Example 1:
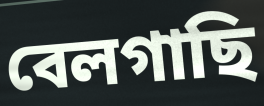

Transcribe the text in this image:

বেলগাছি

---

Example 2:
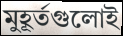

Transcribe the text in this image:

মুহূর্তগুলোই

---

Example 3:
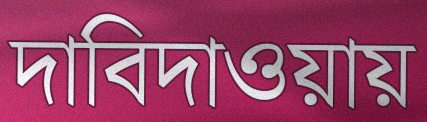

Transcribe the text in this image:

দাবিদাওয়ায়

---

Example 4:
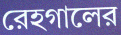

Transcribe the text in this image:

রেহগালের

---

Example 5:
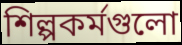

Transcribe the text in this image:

শিল্পকর্মগুলো